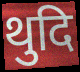
थुदि